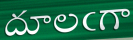
దూలఁగా